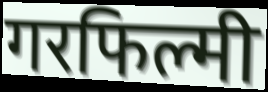
गरफिल्मी